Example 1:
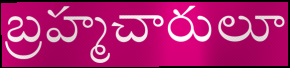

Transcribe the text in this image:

బ్రహ్మచారులూ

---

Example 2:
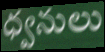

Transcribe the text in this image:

ధ్వనులు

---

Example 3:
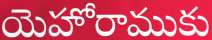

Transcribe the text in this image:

యెహోరాముకు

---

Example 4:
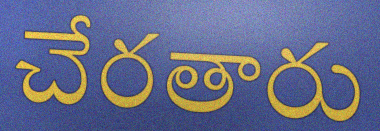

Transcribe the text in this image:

చేరతారు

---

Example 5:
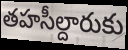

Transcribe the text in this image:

తహసీల్దారుకు